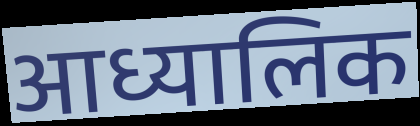
आध्यालिक